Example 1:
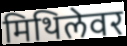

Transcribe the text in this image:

मिथिलेवर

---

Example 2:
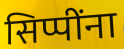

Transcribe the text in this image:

सिप्पींना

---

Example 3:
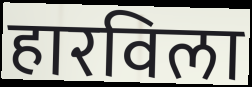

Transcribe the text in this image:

हारविला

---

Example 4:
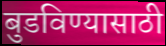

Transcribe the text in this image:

बुडविण्यासाठी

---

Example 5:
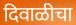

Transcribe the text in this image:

दिवाळीचा